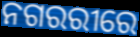
ନଗରରୀରେ